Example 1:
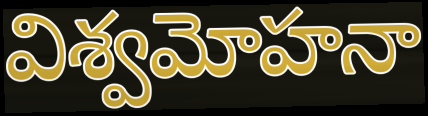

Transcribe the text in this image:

విశ్వమోహనా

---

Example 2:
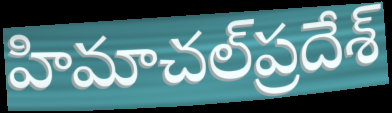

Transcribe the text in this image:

హిమాచల్‌ప్రదేశ్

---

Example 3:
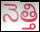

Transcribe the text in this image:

నెత్తి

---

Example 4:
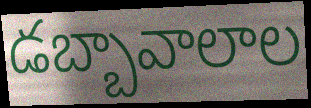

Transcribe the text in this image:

డబ్బావాలాల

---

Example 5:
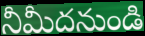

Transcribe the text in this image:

నీమీదనుండి